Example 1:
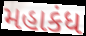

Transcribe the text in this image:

મહાકંધ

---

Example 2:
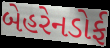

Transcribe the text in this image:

બેહરેનડોર્ફ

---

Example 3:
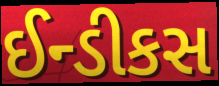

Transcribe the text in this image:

ઈન્ડીકસ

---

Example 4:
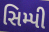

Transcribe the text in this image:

સિમ્પી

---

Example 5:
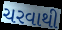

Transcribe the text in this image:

ચરવાથી